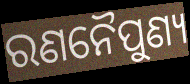
ରଣନୈପୁଣ୍ୟ